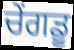
ਚੇਂਗਡੂ